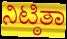
ನಿಟ್ಠಿತಾ